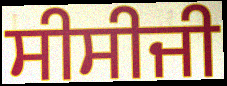
ਸੀਸੀਜੀ